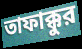
তাফাক্কুর